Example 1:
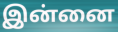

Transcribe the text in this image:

இன்னை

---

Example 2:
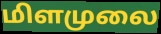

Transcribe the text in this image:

மிளமுலை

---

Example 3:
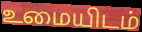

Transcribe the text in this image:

உமையிடம்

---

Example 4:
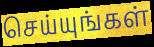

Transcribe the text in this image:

செய்யுங்கள்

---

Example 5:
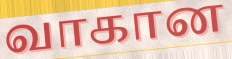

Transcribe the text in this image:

வாகான